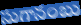
సుగానంబు